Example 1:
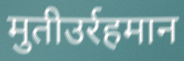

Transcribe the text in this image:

मुतीउर्रहमान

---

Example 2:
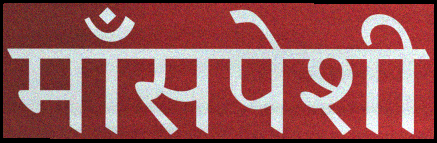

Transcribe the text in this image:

माँसपेशी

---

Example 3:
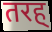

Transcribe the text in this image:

तरह्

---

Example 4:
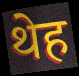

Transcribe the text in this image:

थेह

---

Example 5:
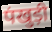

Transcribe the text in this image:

पंखुड़ी